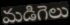
మడిగెలు